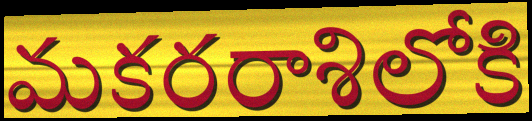
మకరరాశిలోకి